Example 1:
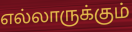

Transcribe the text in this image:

எல்லாருக்கும்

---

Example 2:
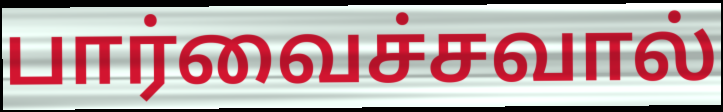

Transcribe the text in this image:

பார்வைச்சவால்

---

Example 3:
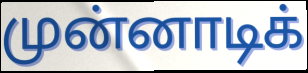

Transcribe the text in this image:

முன்னாடிக்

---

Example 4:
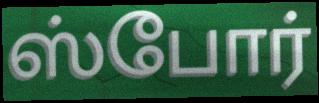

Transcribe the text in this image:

ஸ்போர்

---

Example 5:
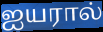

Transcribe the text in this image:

ஐயரால்